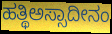
ಹತ್ಥಿಅಸ್ಸಾದೀನಂ